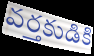
వర్తకుడికి